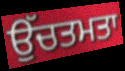
ਉੱਚਤਮਤਾ